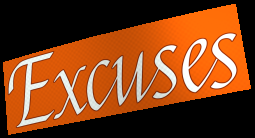
Excuses